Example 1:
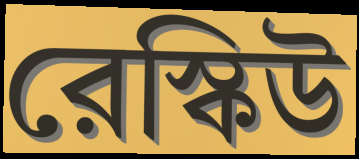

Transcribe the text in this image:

রেস্কিউ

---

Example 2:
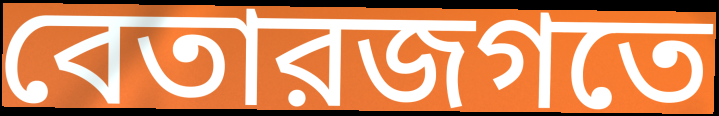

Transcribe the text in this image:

বেতারজগতে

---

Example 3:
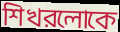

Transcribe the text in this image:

শিখরলোকে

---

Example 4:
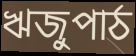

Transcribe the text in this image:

ঋজুপাঠ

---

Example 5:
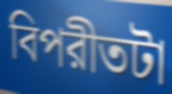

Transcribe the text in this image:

বিপরীতটা